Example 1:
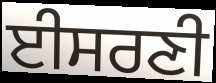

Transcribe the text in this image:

ਈਸਰਣੀ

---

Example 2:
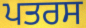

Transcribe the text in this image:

ਪਤਰਸ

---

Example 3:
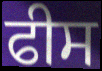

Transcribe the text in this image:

ਫੀਸ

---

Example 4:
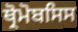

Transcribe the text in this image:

ਥ੍ਰੋਮੋਬਸਿਸ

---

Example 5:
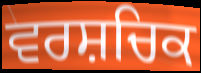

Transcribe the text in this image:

ਵਰਸ਼ਚਿਕ